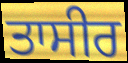
ਤਾਸੀਰ